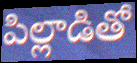
పిల్లాడితో